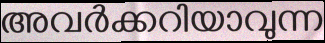
അവർക്കറിയാവുന്ന